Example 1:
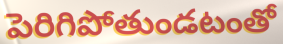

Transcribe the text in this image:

పెరిగిపోతుండటంతో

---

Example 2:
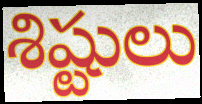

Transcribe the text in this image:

శిష్టులు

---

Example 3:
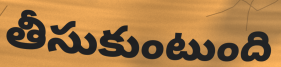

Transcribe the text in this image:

తీసుకుంటుంది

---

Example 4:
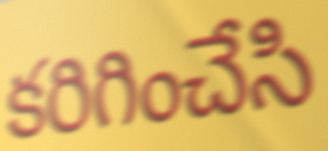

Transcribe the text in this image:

కరిగించేసి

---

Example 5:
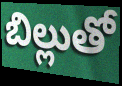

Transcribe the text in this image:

బిల్లుతో